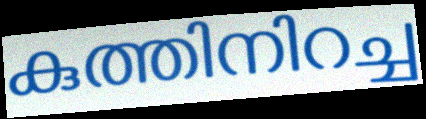
കുത്തിനിറച്ച